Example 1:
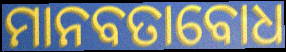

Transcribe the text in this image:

ମାନବତାବୋଧ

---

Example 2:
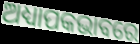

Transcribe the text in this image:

ଅଧ୍ୟାପକଭାବରେ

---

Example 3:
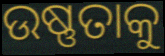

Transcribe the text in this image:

ଉଷ୍ଣତାକୁ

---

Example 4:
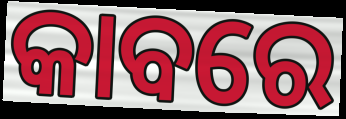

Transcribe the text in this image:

କାବରେ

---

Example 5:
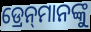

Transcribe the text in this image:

ଡ୍ରେନ୍‌ମାନଙ୍କୁ